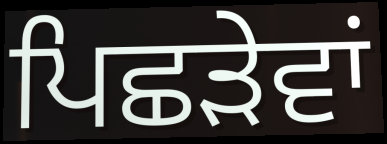
ਪਿਛੜੇਵਾਂ